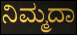
ನಿಮ್ಮದಾ